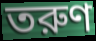
তরুণ